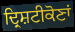
ਦ੍ਰਿਸ਼ਟੀਕੋਣਾਂ